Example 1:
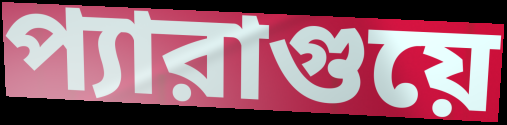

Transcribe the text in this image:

প্যারাগুয়ে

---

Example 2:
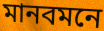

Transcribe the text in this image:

মানবমনে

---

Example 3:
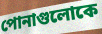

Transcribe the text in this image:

পোনাগুলোকে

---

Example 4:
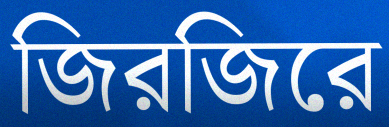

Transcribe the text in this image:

জিরজিরে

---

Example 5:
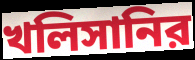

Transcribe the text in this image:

খলিসানির